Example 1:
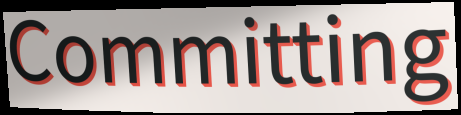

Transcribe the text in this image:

Committing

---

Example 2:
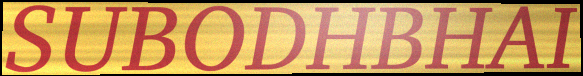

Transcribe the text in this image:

SUBODHBHAI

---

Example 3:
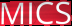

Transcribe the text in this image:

MICS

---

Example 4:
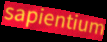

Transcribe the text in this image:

sapientium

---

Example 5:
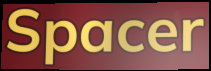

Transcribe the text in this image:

Spacer